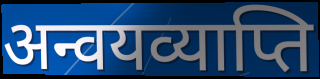
अन्वयव्याप्ति